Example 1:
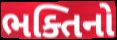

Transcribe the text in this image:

ભક્તિનો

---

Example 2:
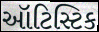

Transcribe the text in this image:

ઑટિસ્ટિક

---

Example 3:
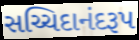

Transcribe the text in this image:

સચ્ચિદાનંદરૂપ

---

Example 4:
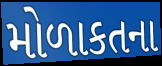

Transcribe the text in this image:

મોળાકતના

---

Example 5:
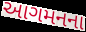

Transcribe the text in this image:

આગમનના